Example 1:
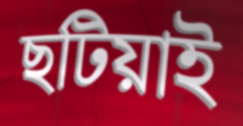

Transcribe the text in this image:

ছটিয়াই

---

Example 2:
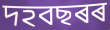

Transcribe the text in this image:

দহবছৰৰ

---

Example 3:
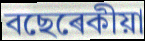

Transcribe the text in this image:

বছেৰেকীয়া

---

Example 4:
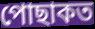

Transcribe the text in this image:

পোছাকত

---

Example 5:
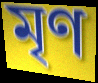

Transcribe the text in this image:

মৃণ